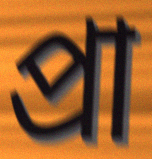
প্ৰা